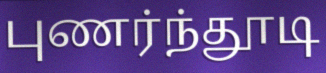
புணர்ந்தூடி